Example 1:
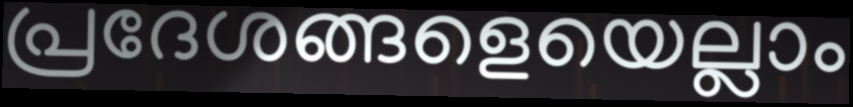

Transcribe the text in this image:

പ്രദേശങ്ങളെയെല്ലാം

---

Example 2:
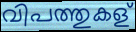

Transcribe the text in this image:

വിപത്തുകള്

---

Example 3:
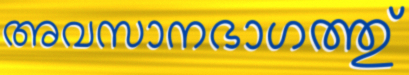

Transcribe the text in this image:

അവസാനഭാഗത്തു്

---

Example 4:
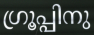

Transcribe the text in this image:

ഗ്രൂപ്പിനു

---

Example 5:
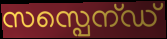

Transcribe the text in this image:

സസ്പെന്ഡ്